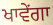
ਖਾਵੇਂਗਾ